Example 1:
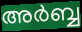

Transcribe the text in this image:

അർബ്ബ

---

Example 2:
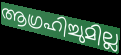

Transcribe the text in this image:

ആഗ്രഹിച്ചുമില്ല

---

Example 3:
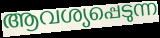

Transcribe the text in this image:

ആവശ്യപ്പെടുന്ന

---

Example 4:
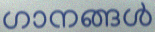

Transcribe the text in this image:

ഗാനങ്ങൾ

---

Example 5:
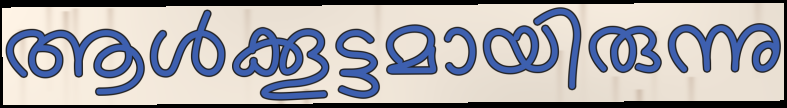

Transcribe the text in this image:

ആൾക്കൂട്ടമായിരുന്നു